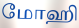
மோஹி